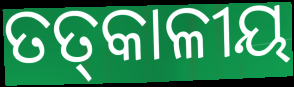
ତତ୍‌କାଳୀୟ